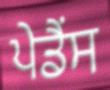
ਪੇਡੈਂਸ